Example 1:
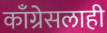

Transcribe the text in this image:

काँग्रेसलाही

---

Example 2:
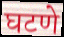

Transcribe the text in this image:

घटणे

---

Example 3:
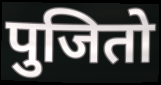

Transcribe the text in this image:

पुजितो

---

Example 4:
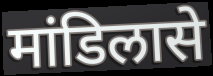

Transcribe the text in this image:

मांडिलासे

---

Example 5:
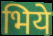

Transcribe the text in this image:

भिये